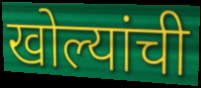
खोल्यांची